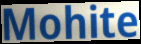
Mohite